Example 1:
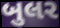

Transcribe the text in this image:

બુલર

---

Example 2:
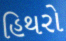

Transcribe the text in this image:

હિથરો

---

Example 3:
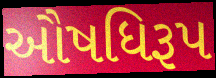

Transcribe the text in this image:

ઔષધિરૂપ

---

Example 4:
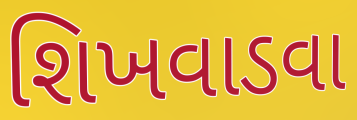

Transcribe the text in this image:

શિખવાડવા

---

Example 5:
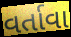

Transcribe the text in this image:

વર્તાવા